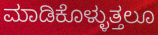
ಮಾಡಿಕೊಳ್ಳುತ್ತಲೂ